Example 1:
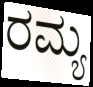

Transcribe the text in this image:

ರಮ್ಯ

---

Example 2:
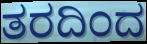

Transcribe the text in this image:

ತರದಿಂದ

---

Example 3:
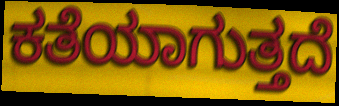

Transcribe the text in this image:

ಕತೆಯಾಗುತ್ತದೆ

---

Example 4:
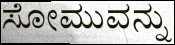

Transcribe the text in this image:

ಸೋಮುವನ್ನು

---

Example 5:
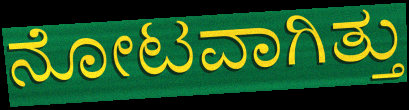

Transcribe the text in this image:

ನೋಟವಾಗಿತ್ತು